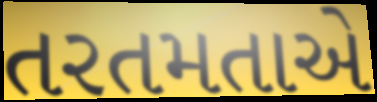
તરતમતાએ